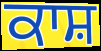
ਕਾਸ਼